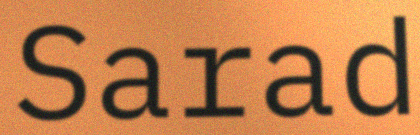
Sarad